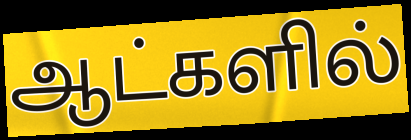
ஆட்களில்